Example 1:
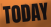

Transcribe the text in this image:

TODAY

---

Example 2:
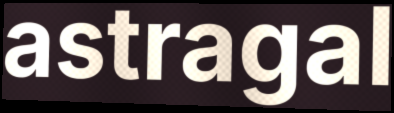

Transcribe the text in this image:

astragal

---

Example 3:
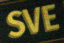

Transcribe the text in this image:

SVE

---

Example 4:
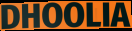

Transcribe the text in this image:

DHOOLIA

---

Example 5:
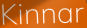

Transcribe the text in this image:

Kinnar